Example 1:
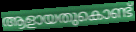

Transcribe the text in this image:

ആളായതുകൊണ്ട്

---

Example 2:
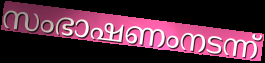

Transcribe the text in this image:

സംഭാഷണംനടന്ന്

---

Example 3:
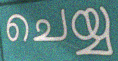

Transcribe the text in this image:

ചെയ്യ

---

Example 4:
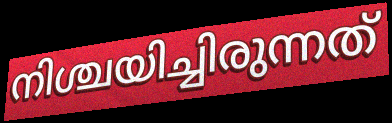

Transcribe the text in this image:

നിശ്ചയിച്ചിരുന്നത്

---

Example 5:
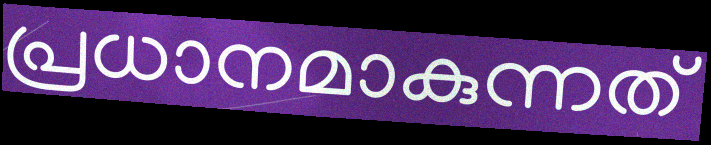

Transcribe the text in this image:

പ്രധാനമാകുന്നത്